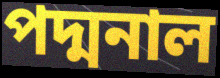
পদ্মনাল